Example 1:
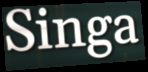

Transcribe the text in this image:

Singa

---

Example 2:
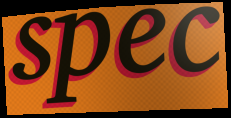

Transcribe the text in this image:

spec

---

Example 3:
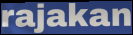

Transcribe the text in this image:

rajakan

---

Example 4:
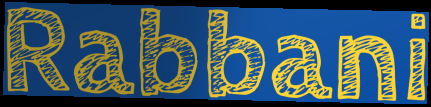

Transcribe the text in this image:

Rabbani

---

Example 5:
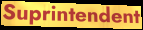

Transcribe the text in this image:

Suprintendent